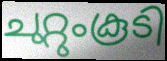
ചുറ്റുംകൂടി